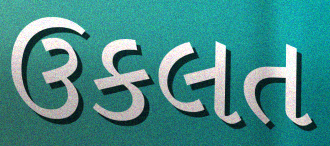
ઉકલત